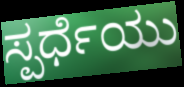
ಸ್ಪರ್ಧೆಯು